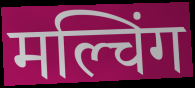
मल्चिंग